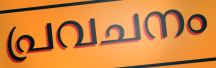
പ്രവചനം